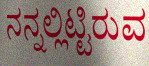
ನನ್ನಲ್ಲಿಟ್ಟಿರುವ